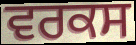
ਵਰਕਸ